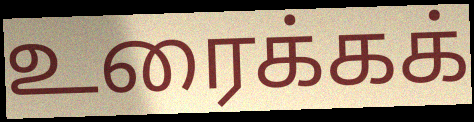
உரைக்கக்